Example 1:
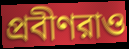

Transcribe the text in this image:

প্রবীণরাও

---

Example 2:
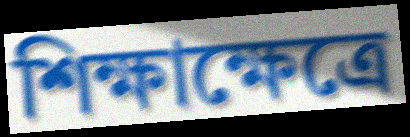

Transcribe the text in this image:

শিক্ষাক্ষেত্রে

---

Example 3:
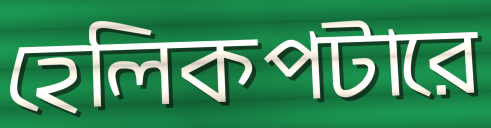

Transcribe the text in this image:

হেলিকপটারে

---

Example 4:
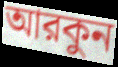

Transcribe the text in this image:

আরকুন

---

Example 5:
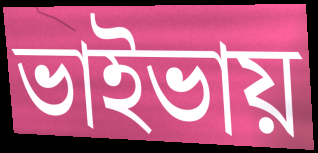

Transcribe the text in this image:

ভাইভায়